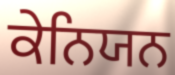
ਕੇਨਿਯਨ